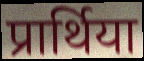
प्रार्थिया